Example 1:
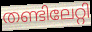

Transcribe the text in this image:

തണ്ടിലേറ്റി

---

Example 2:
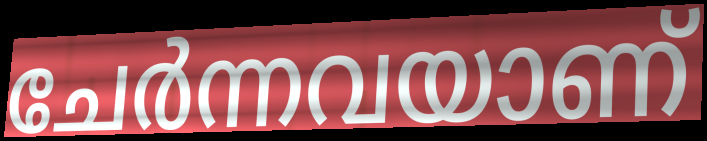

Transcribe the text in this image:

ചേർന്നവയാണ്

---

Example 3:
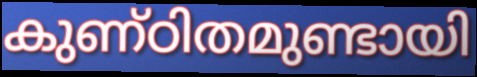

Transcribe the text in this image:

കുണ്ഠിതമുണ്ടായി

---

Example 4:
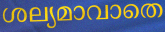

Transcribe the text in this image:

ശല്യമാവാതെ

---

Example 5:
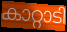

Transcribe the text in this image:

കാറ്റാടി